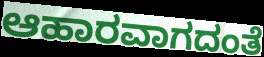
ಆಹಾರವಾಗದಂತೆ